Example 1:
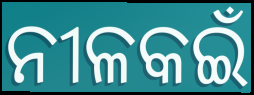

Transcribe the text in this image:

ନୀଳକଇଁ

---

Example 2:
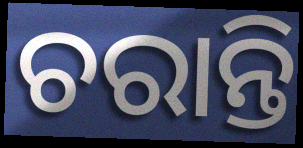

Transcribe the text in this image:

ଚରାନ୍ତି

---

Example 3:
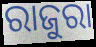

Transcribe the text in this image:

ରାଜୁରା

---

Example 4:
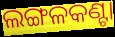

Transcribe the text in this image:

ଲଙ୍ଗଳକଣ୍ଟା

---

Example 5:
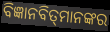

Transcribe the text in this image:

ବିଜ୍ଞାନବିତ୍‌ମାନଙ୍କର